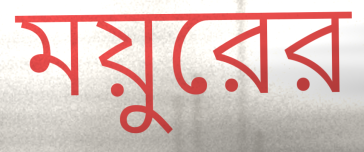
ময়ুরের